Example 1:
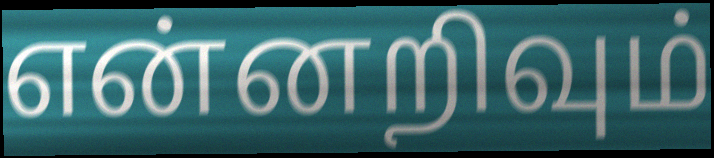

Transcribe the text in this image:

என்னறிவும்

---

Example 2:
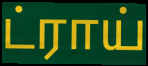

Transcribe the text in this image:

ட்ராய்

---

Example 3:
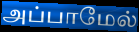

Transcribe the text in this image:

அப்பாமேல்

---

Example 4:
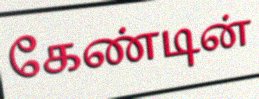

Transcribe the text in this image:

கேண்டின்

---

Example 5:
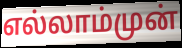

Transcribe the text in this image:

எல்லாம்முன்